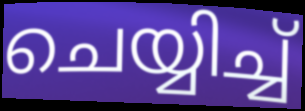
ചെയ്യിച്ച്